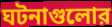
ঘটনাগুলোর